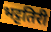
भट्टतिरी